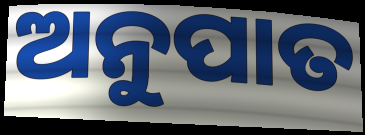
ଅନୁପାତ